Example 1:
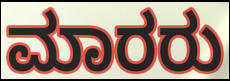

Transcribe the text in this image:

ಮಾರರು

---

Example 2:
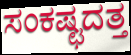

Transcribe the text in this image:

ಸಂಕಷ್ಟದತ್ತ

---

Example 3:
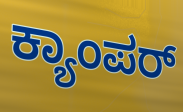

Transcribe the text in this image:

ಕ್ಯಾಂಪರ್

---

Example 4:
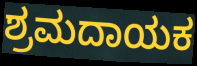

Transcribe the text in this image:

ಶ್ರಮದಾಯಕ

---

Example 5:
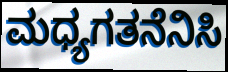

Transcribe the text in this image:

ಮಧ್ಯಗತನೆನಿಸಿ